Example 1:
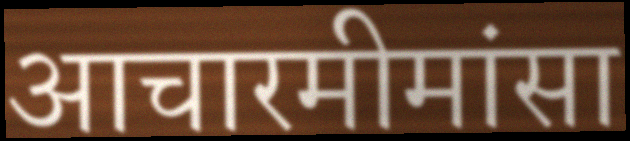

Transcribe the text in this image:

आचारमीमांसा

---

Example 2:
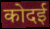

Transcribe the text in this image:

कोदई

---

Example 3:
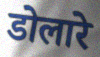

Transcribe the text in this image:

डोलारे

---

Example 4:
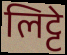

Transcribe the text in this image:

लिट्टे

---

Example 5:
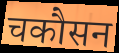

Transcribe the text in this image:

चकौसन